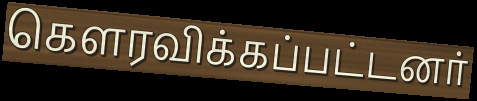
கௌரவிக்கப்பட்டனர்